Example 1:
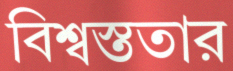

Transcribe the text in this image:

বিশ্বস্ততার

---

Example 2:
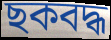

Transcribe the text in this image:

ছকবদ্ধ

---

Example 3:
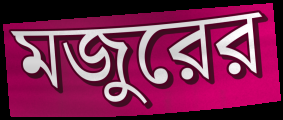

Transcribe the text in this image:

মজুরের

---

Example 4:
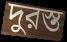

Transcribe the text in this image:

দুরস্ত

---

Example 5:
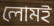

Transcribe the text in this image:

লোমই